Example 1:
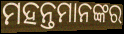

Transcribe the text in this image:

ମହନ୍ତମାନଙ୍କର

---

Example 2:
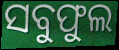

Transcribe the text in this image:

ସବୁଫୁଲ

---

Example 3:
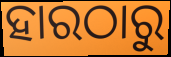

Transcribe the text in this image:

ହାରଠାରୁ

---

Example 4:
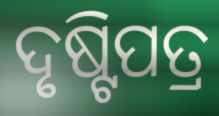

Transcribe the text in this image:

ଦୃଷ୍ଟିପତ୍ର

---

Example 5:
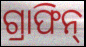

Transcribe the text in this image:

ଗ୍ରାଫିନ୍